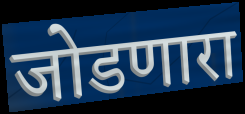
जोडणारा